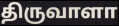
திருவாளா